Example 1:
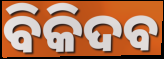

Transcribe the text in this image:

ବିକିଦବ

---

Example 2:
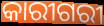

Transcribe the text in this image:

କାରୀଗରୀ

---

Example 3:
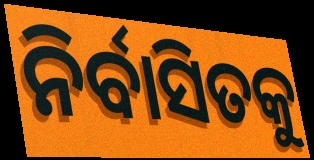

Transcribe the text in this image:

ନିର୍ବାସିତକୁ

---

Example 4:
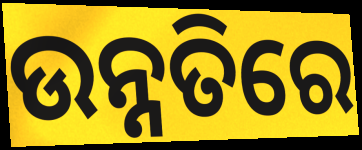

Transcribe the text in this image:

ଉନ୍ନତିରେ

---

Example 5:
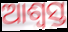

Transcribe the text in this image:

ଆଶ୍ୱସ୍ତ